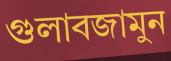
গুলাবজামুন